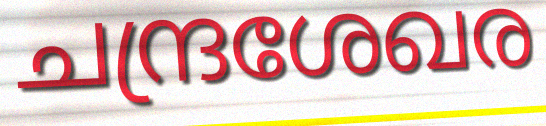
ചന്ദ്രശേഖര